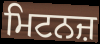
ਮਿਟਨਜ਼